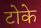
टोके